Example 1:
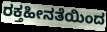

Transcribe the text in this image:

ರಕ್ತಹೀನತೆಯಿಂದ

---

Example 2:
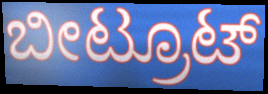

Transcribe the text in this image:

ಬೀಟ್ರೂಟ್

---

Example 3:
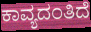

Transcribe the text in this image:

ಕಾವ್ಯದಂತಿದೆ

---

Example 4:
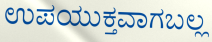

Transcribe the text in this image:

ಉಪಯುಕ್ತವಾಗಬಲ್ಲ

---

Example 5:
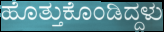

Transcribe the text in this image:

ಹೊತ್ತುಕೊಂಡಿದ್ದಳು